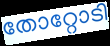
തോറ്റോടി